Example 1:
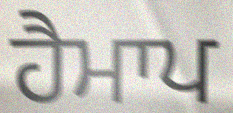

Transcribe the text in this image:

ਹੈਮਾਪ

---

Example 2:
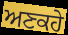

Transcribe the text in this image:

ਅਣਕਹੇ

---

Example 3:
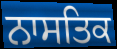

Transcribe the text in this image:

ਨਾਸਤਿਕ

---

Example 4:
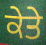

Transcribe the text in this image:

ਕੇਤੇ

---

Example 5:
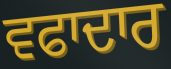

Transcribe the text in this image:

ਵਫਾਦਾਰ